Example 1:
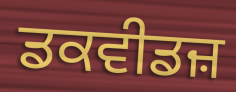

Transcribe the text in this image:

ਡਕਵੀਡਜ਼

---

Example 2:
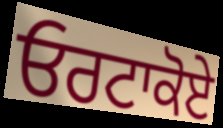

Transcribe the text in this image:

ਓਰਟਾਕੋਏ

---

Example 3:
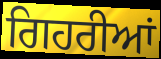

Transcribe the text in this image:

ਗਿਹਰੀਆਂ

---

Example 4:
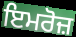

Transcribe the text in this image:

ਇਮਰੋਜ਼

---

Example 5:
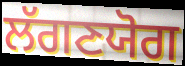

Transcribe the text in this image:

ਲੱਗਣਯੋਗ